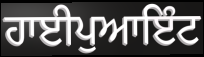
ਹਾਈਪੁਆਇੰਟ